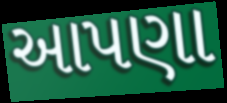
આપણા